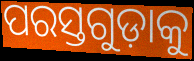
ପରସ୍ତଗୁଡ଼ାକୁ